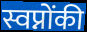
स्वप्नोंकी